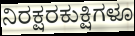
ನಿರಕ್ಷರಕುಕ್ಷಿಗಳೂ